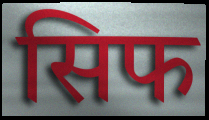
सिफ